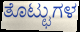
ತೊಟ್ಟುಗಳ